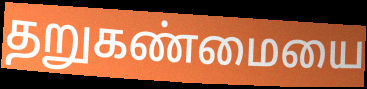
தறுகண்மையை